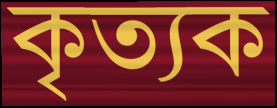
কৃত্যক